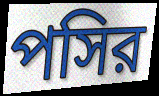
পসির